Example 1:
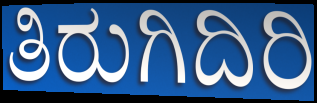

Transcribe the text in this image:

ತಿರುಗಿದಿರಿ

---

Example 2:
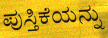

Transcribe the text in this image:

ಪುಸ್ತಿಕೆಯನ್ನು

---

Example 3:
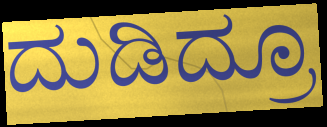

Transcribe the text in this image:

ದುಡಿದ್ರೂ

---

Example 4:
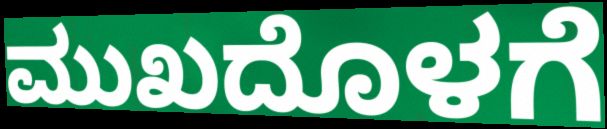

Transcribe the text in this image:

ಮುಖದೊಳಗೆ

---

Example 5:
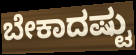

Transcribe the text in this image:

ಬೇಕಾದಷ್ಟು